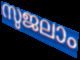
സുജലാം